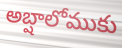
అబ్షాలోముకు